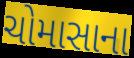
ચોમાસાના